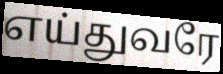
எய்துவரே